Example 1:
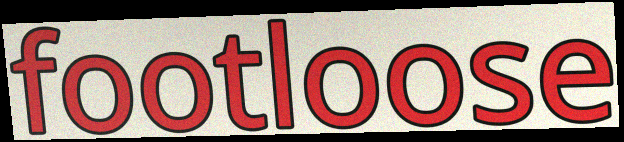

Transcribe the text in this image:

footloose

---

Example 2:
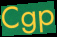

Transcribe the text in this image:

Cgp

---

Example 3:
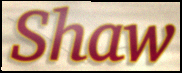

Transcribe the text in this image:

Shaw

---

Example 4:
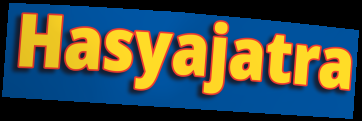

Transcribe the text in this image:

Hasyajatra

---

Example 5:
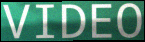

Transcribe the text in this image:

VIDEO